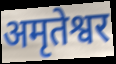
अमृतेश्वर